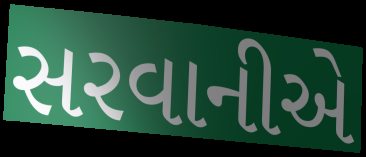
સરવાનીએ